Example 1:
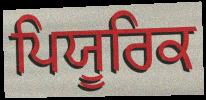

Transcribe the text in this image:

ਪਿਯੂਰਿਕ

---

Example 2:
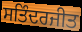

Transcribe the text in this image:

ਸਤਿੰਦਰਜੀਤ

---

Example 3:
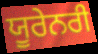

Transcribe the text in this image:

ਯੂਰੇਨਰੀ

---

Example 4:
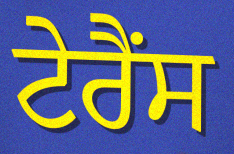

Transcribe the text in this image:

ਟੇਰੈਂਸ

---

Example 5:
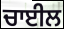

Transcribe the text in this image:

ਚਾਈਲ